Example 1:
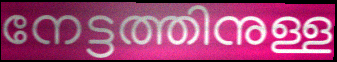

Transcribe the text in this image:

നേട്ടത്തിനുള്ള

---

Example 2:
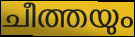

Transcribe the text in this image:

ചീത്തയും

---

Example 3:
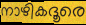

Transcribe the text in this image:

നാഴികദൂരെ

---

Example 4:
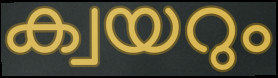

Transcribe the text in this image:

ക്വയറും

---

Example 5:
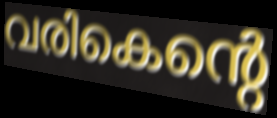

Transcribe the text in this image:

വരികെന്റെ